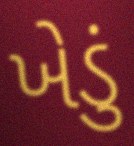
ખેડું